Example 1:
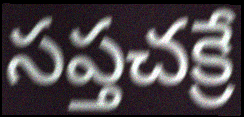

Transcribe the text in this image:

సప్తచక్రే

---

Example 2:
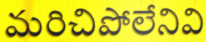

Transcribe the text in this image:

మరిచిపోలేనివి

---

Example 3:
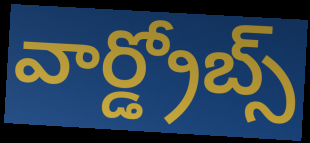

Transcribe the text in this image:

వార్డ్రోబ్స్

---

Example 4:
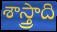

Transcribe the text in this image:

శాస్త్రాది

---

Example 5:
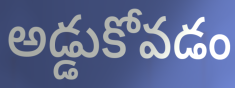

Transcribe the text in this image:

అడ్డుకోవడం